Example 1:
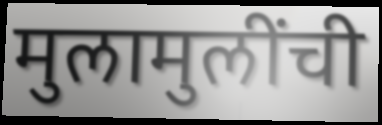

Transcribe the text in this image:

मुलामुलींची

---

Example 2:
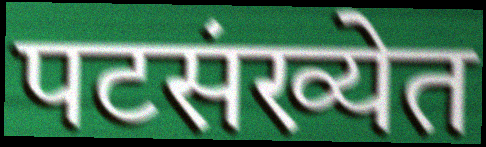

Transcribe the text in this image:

पटसंख्येत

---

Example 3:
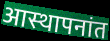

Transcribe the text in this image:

आस्थापनांत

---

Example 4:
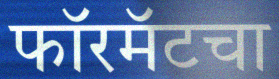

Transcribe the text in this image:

फॉरमॅटचा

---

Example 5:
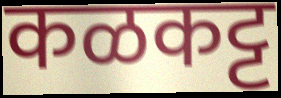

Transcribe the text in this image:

कळकट्ट